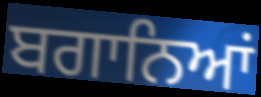
ਬਗਾਨਿਆਂ